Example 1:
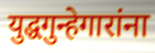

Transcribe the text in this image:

युद्धगुन्हेगारांना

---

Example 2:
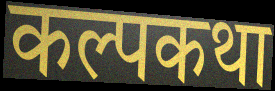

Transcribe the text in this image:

कल्पकथा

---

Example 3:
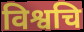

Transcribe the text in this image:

विश्वचि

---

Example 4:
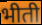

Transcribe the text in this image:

भीती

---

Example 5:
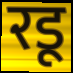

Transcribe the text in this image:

रडू